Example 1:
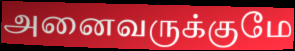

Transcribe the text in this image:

அனைவருக்குமே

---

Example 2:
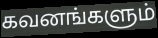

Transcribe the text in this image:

கவனங்களும்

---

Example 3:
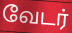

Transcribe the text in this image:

வேடர்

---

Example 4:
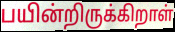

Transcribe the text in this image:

பயின்றிருக்கிறாள்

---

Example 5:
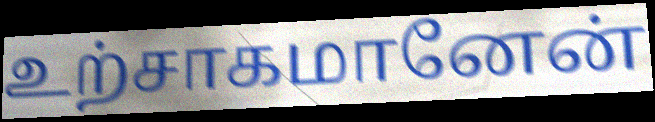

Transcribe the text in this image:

உற்சாகமானேன்